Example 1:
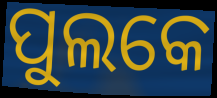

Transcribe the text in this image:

ପୁଲକେ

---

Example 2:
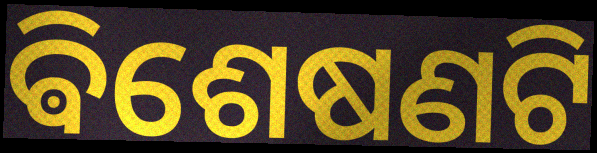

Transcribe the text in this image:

ଵିଶେଷଣଟି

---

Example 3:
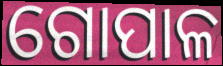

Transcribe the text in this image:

ଗୋପାଳ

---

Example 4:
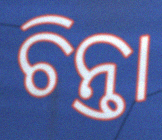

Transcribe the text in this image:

ଚିନ୍ତା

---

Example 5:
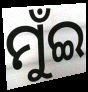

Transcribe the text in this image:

ମୁଁଇ